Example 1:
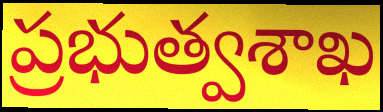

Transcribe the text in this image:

ప్రభుత్వశాఖ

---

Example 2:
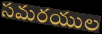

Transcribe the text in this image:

సమరయుల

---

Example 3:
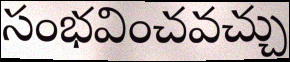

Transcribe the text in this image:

సంభవించవచ్చు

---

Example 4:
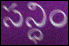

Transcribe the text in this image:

సన్ధిం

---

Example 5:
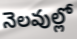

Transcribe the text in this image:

నెలవుల్లో